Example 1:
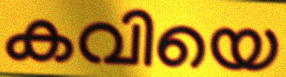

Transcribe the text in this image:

കവിയെ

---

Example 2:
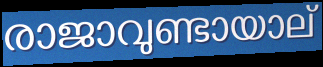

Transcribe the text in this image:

രാജാവുണ്ടായാല്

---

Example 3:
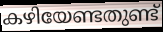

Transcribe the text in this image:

കഴിയേണ്ടതുണ്ട്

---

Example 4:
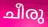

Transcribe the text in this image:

ചീരു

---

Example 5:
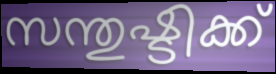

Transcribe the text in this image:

സന്തുഷ്ടിക്ക്